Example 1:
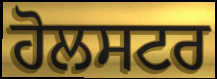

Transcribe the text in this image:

ਹੋਲਸਟਰ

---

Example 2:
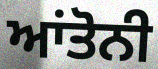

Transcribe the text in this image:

ਆਂਤੋਨੀ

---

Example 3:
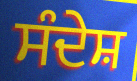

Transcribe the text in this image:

ਸੰਦੇਸ਼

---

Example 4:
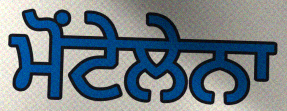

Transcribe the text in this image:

ਮੋਂਟੇਲੇਨਾ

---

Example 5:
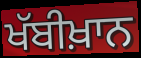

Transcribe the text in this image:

ਖੱਬੀਖ਼ਾਨ